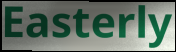
Easterly